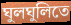
ঘুলঘুলিতে